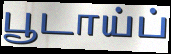
பூடாய்ப்